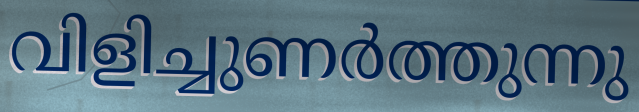
വിളിച്ചുണർത്തുന്നു